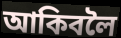
আকিবলৈ